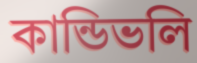
কান্ডিভলি